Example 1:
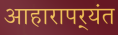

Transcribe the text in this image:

आहारापर्यंत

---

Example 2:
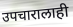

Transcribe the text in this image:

उपचारालाही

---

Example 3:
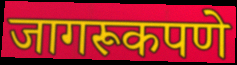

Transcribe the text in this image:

जागरूकपणे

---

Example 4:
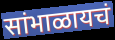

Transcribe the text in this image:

सांभाळायचं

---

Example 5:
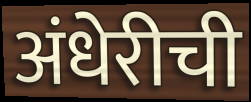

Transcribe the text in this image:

अंधेरीची